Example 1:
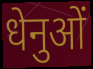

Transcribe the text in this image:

धेनुओं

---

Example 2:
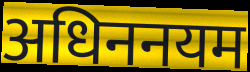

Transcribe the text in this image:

अधिननयम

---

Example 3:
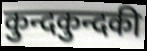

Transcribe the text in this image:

कुन्दकुन्दकी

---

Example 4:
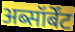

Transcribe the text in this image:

अब्सॉर्बेंट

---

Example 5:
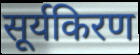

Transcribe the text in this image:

सूर्यकिरण